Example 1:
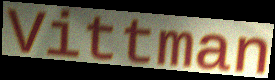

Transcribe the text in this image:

Vittman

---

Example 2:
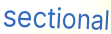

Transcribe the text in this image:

sectional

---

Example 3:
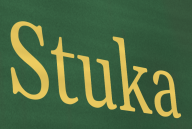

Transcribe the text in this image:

Stuka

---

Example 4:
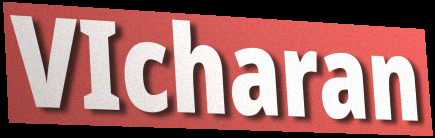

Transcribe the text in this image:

VIcharan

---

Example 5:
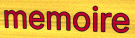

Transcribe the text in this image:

memoire